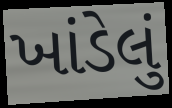
ખાંડેલું